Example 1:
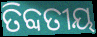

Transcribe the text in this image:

ତିବ୍ଦତୀୟ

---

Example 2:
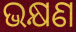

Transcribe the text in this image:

ଭକ୍ଷଣ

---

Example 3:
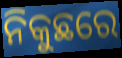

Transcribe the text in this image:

ନିକୁଛରେ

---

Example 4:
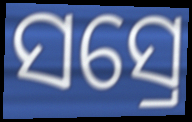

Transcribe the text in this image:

ସସ୍ରେ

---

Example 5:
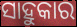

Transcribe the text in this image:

ସାହୁକାର